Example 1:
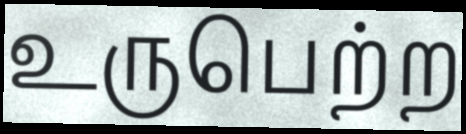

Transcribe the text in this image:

உருபெற்ற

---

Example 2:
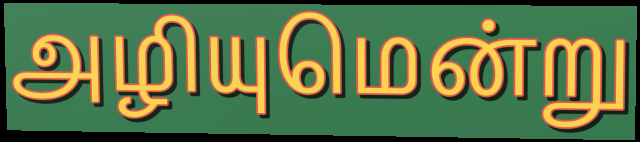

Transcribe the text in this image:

அழியுமென்று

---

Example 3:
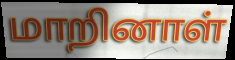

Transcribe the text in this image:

மாறினாள்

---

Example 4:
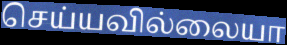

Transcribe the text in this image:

செய்யவில்லையா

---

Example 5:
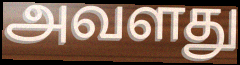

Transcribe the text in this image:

அவளது